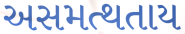
અસમત્થતાય